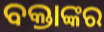
ବକ୍ତାଙ୍କର